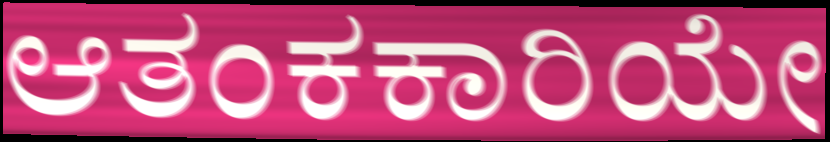
ಆತಂಕಕಾರಿಯೇ